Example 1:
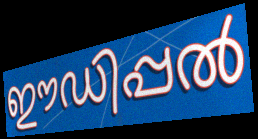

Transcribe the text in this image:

ഈഡിപ്പൽ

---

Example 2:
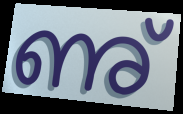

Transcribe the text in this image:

ണു്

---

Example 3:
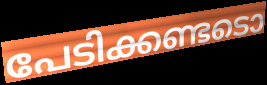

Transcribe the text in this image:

പേടിക്കണ്ടടൊ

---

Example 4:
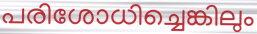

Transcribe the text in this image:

പരിശോധിച്ചെങ്കിലും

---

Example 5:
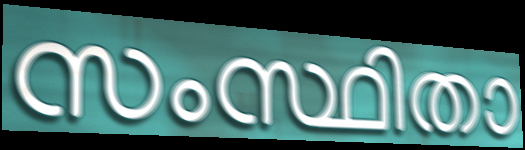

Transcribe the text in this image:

സംസ്ഥിതാ